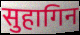
सुहागिन